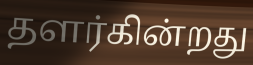
தளர்கின்றது